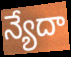
న్యేదా